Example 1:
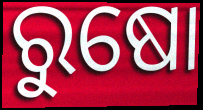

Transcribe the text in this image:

ରୁଷୋ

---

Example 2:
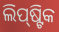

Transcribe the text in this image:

ଲିପ୍‌ଷ୍ଟିକ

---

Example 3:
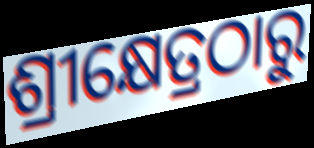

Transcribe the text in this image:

ଶ୍ରୀକ୍ଷେତ୍ରଠାରୁ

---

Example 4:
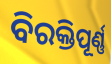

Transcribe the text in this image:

ବିରକ୍ତିପୂର୍ଣ୍ଣ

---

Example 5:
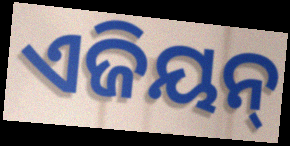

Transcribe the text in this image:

ଏଜିୟନ୍